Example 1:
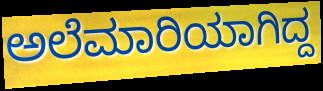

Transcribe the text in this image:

ಅಲೆಮಾರಿಯಾಗಿದ್ದ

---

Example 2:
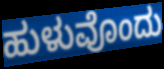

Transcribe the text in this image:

ಹುಳುವೊಂದು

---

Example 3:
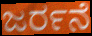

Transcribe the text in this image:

ಜರ್ರನೆ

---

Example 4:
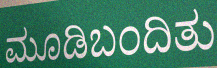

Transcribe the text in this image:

ಮೂಡಿಬಂದಿತು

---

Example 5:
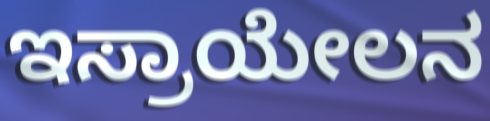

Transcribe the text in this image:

ಇಸ್ರಾಯೇಲನ